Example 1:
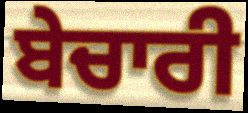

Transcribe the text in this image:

ਬੇਚਾਰੀ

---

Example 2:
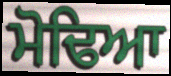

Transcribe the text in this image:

ਮੋਢਿਆ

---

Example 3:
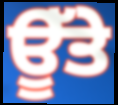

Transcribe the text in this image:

ਊੱਤੇ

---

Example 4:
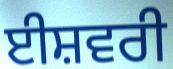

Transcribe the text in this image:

ਈਸ਼ਵਰੀ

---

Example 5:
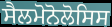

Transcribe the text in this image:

ਸੈਲਮੋਨੋਲੋਸਿਸ